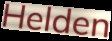
Helden